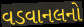
વડવાનલનો